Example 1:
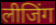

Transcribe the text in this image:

लीजिंग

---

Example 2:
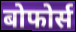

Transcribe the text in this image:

बोफोर्स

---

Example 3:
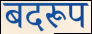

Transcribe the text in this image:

बदरूप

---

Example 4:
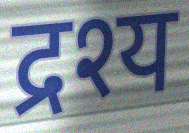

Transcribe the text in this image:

द्रश्य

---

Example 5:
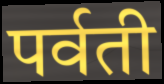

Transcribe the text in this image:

पर्वती